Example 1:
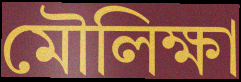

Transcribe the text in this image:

মৌলিক্ষা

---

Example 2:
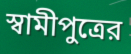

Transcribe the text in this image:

স্বামীপুত্রের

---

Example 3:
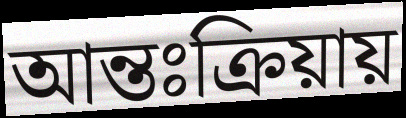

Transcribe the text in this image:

আন্তঃক্রিয়ায়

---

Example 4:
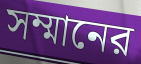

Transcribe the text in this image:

সম্মানের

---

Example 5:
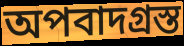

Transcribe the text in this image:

অপবাদগ্রস্ত